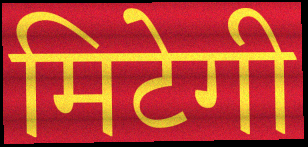
मिटेगी